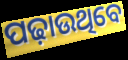
ପଢ଼ାଉଥିବେ